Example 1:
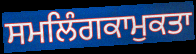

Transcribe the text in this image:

ਸਮਲਿੰਗਕਾਮੁਕਤਾ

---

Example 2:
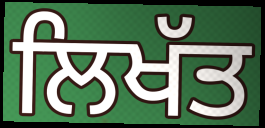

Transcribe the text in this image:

ਲਿਖੱਤ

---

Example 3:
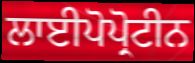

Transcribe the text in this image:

ਲਾਈਪੋਪ੍ਰੋਟੀਨ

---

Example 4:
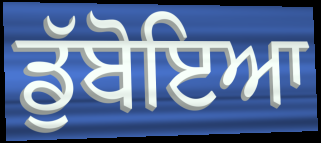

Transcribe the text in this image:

ਡੁੱਬੋਇਆ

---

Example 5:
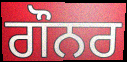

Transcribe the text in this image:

ਗੌਨਰ